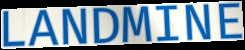
LANDMINE